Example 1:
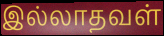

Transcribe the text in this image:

இல்லாதவள்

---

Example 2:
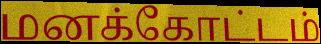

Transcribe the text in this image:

மனக்கோட்டம்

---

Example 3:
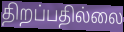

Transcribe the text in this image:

திறப்பதில்லை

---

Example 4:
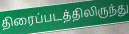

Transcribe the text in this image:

திரைப்படத்திலிருந்து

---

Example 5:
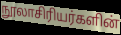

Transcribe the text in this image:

நூலாசிரியர்களின்